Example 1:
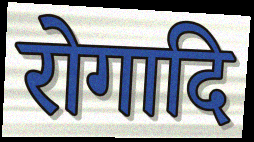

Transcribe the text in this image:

रोगादि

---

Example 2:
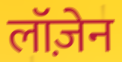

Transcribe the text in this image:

लॉज़ेन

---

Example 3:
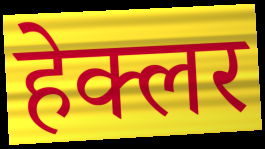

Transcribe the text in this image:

हेक्लर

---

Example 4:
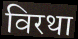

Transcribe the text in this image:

विरथा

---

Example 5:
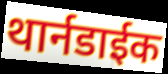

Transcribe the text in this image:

थार्नडाईक